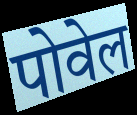
पोवेल